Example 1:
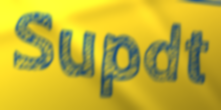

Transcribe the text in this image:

Supdt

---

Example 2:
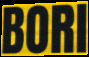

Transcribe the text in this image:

BORI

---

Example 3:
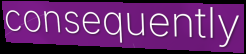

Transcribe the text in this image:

consequently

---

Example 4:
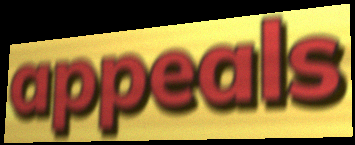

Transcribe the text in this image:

appeals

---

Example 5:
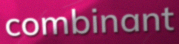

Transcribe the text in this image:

combinant